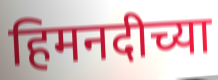
हिमनदीच्या